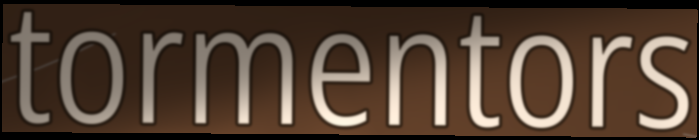
tormentors